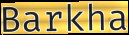
Barkha